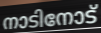
നാടിനോട്